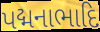
પદ્મનાભાદિ